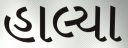
હાલ્યા